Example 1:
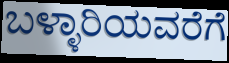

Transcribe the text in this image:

ಬಳ್ಳಾರಿಯವರೆಗೆ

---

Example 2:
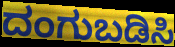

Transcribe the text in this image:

ದಂಗುಬಡಿಸಿ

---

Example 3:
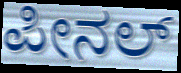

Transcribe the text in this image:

ಪೀನಲ್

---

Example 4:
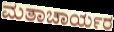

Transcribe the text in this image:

ಮತಾಚಾರ್ಯರ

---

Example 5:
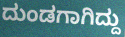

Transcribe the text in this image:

ದುಂಡಗಾಗಿದ್ದು